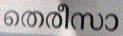
തെരീസാ